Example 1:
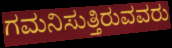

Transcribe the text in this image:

ಗಮನಿಸುತ್ತಿರುವವರು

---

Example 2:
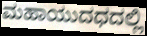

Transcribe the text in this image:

ಮಹಾಯುದಧದಲ್ಲಿ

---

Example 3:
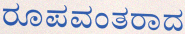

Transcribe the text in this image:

ರೂಪವಂತರಾದ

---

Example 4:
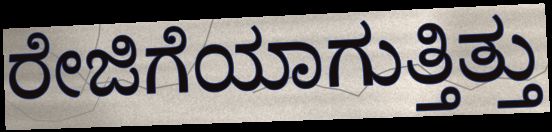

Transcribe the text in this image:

ರೇಜಿಗೆಯಾಗುತ್ತಿತ್ತು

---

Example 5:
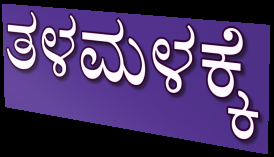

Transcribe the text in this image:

ತಳಮಳಕ್ಕೆ